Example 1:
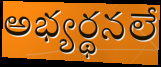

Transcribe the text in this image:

అభ్యర్థనలే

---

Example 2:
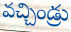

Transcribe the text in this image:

వచ్చిండ్రు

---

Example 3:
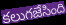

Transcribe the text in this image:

కలుగజేసింది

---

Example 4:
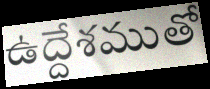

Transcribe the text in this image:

ఉద్దేశముతో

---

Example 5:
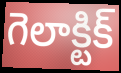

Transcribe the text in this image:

గెలాక్టిక్